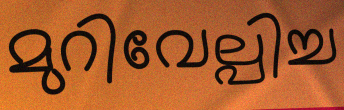
മുറിവേല്പിച്ച